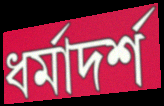
ধর্মাদর্শ